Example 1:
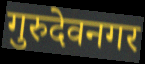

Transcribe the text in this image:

गुरुदेवनगर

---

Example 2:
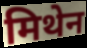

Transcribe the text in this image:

मिथेन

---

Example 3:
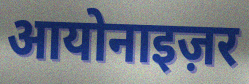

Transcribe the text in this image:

आयोनाइज़र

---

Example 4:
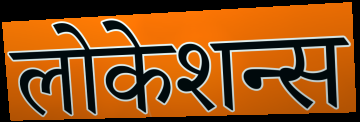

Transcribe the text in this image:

लोकेशन्स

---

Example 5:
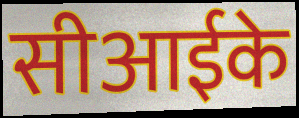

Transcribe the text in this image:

सीआईके